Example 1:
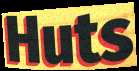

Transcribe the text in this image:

Huts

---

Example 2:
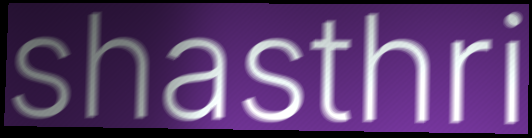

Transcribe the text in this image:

shasthri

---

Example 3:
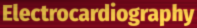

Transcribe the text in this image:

Electrocardiography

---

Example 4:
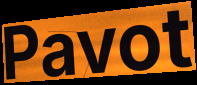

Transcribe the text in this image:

Pavot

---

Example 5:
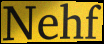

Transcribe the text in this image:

Nehf